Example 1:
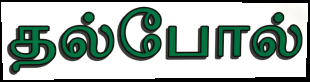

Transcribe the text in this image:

தல்போல்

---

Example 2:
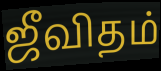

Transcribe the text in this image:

ஜீவிதம்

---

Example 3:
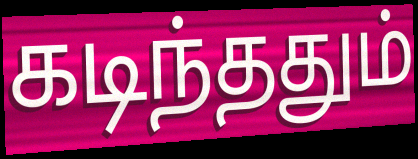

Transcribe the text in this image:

கடிந்ததும்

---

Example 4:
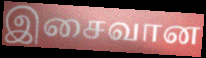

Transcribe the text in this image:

இசைவான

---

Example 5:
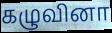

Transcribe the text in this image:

கழுவினா